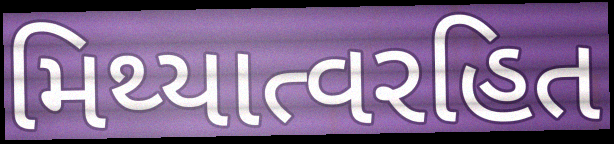
મિથ્યાત્વરહિત